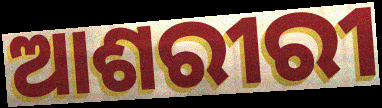
ଆଶରୀରୀ